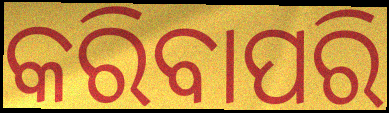
କରିବାପରି